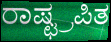
ರಾಷ್ಟ್ರಪಿತ